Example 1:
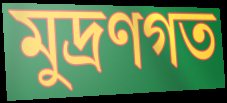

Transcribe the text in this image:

মুদ্রণগত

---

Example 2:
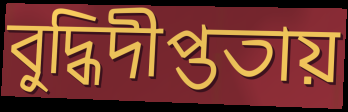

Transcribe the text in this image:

বুদ্ধিদীপ্ততায়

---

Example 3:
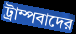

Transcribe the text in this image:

ট্রাম্পবাদের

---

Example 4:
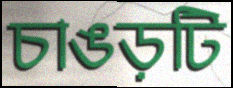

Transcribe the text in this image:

চাঙড়টি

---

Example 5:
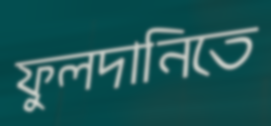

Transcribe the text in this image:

ফুলদানিতে